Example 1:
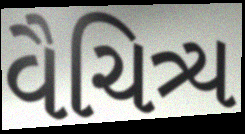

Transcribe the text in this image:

વૈચિત્ર્ય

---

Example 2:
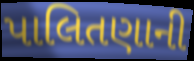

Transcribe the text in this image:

પાલિતણાની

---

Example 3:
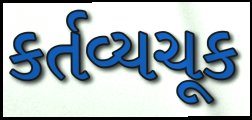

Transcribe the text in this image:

કર્તવ્યચૂક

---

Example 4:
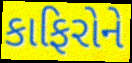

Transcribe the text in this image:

કાફિરોને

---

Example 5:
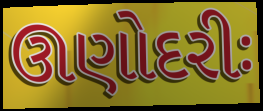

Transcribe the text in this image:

ઊણોદરીઃ